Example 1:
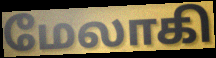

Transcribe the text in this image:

மேலாகி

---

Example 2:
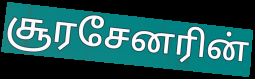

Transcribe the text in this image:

சூரசேனரின்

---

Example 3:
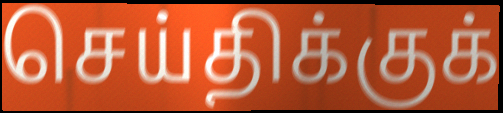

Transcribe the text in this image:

செய்திக்குக்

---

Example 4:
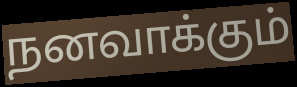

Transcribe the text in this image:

நனவாக்கும்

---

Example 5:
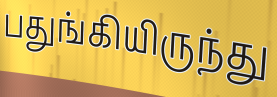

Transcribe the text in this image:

பதுங்கியிருந்து